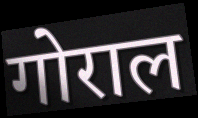
गोराल